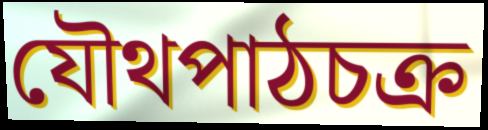
যৌথপাঠচক্র